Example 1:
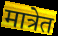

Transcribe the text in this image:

मात्रेत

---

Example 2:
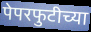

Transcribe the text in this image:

पेपरफुटीच्या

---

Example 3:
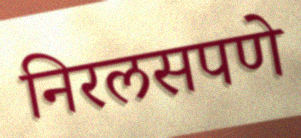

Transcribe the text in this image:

निरलसपणे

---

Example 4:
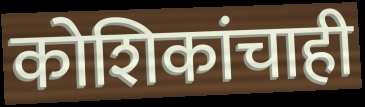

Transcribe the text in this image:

कोशिकांचाही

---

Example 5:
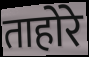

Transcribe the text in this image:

ताहोरे